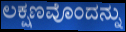
ಲಕ್ಷಣವೊಂದನ್ನು